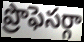
ప్రొఫెసర్గా